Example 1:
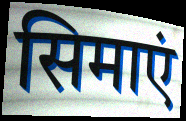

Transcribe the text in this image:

सिमाएं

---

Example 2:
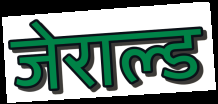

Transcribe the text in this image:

जेराल्ड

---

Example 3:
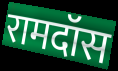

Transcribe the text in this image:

रामदॉस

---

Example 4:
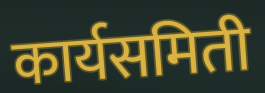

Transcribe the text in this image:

कार्यसमिती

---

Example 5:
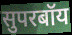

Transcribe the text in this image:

सुपरबॉय